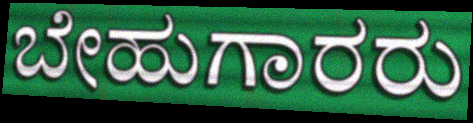
ಬೇಹುಗಾರರು